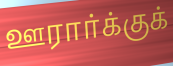
ஊரார்க்குக்